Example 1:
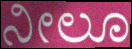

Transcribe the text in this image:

ನೀಲೂ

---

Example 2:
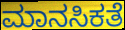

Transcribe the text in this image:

ಮಾನಸಿಕತೆ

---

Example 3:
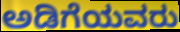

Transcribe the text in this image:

ಅಡಿಗೆಯವರು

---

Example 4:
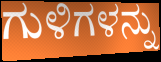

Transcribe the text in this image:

ಗುಳಿಗಳನ್ನು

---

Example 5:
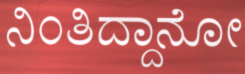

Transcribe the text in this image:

ನಿಂತಿದ್ದಾನೋ